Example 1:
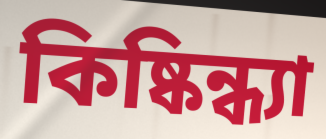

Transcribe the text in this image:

কিষ্কিন্ধ্যা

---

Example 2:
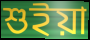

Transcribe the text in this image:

শুইয়া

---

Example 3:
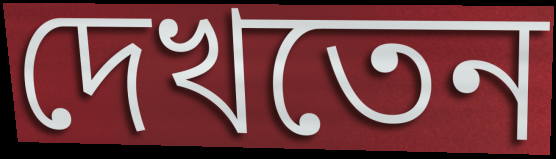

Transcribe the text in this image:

দেখতেন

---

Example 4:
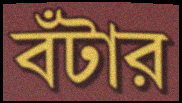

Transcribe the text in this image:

বঁটার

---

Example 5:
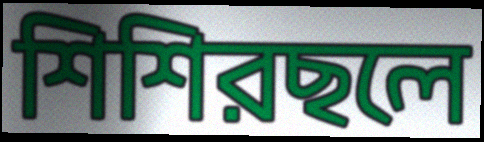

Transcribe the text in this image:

শিশিরছলে